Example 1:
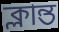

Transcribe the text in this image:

ক্লান্ত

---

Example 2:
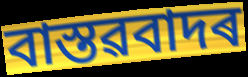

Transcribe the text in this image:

বাস্তৱবাদৰ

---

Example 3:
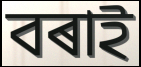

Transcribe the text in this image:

বৰাই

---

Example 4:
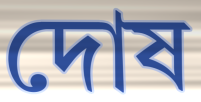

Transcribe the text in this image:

দোষ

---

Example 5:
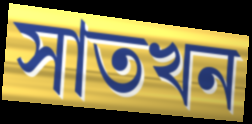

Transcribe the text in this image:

সাতখন